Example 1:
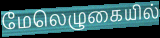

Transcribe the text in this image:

மேலெழுகையில்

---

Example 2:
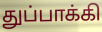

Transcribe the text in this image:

துப்பாக்கி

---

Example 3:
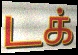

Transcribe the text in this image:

டக்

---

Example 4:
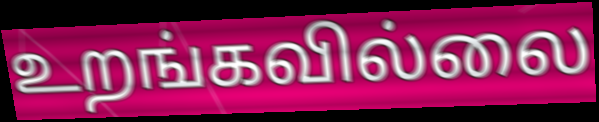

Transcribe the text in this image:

உறங்கவில்லை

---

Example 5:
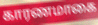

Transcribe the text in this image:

காரணமாகை